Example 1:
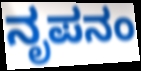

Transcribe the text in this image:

ನೃಪನಂ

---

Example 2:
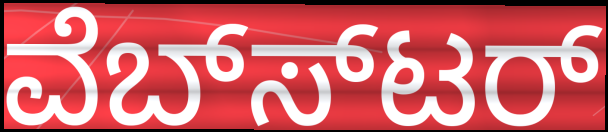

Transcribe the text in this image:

ವೆಬ್ಸ್‍ಟರ್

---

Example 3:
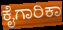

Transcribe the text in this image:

ಕೈಗಾರಿಕಾ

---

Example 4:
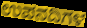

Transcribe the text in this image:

ಉಪನದಿಗಳ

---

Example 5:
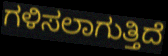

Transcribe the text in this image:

ಗಳಿಸಲಾಗುತ್ತಿದೆ